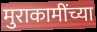
मुराकामींच्या